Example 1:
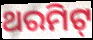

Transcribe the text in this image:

ଥରମିଟ୍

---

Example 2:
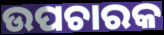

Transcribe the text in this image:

ଉପଚାରକ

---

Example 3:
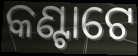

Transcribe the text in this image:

କଣ୍ଟାଟେ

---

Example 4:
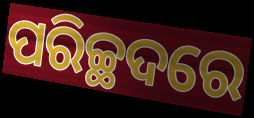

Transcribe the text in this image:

ପରିଚ୍ଛଦରେ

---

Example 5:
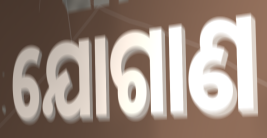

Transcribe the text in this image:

ଯୋଗାଣ